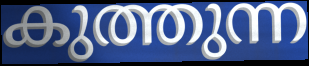
കുത്തുന്ന